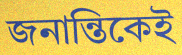
জনান্তিকেই